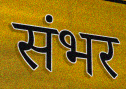
संभर